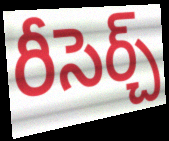
రీసెర్చ్